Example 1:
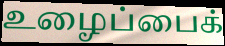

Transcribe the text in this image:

உழைப்பைக்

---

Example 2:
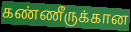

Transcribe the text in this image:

கண்ணீருக்கான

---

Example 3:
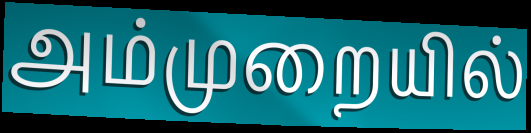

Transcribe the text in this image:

அம்முறையில்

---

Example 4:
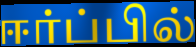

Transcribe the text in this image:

ஈர்ப்பில்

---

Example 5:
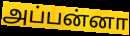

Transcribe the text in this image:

அப்பன்னா